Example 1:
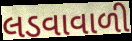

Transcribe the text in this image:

લડવાવાળી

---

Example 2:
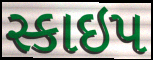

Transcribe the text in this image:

સ્કાઇપ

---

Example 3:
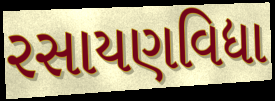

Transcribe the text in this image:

રસાયણવિદ્યા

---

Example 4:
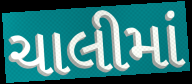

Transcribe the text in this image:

ચાલીમાં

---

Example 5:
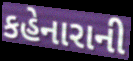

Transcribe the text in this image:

કહેનારાની